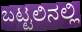
ಬಟ್ಟಲಿನಲ್ಲಿ